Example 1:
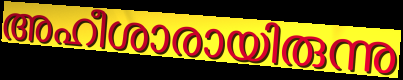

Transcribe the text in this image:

അഹീശാരായിരുന്നു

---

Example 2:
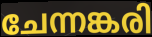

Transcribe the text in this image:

ചേന്നങ്കരി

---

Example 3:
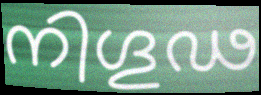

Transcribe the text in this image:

നിഗൂഢ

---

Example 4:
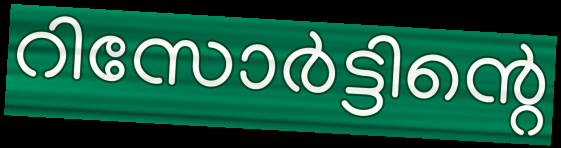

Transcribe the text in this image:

റിസോർട്ടിന്റെ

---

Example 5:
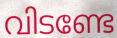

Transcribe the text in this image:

വിടണ്ടേ